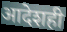
आदेशही